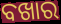
ବଖାର